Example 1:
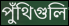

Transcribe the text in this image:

পুঁথিগুলি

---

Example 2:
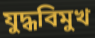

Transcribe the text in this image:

যুদ্ধবিমুখ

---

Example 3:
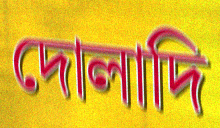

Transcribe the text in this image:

দোলাদি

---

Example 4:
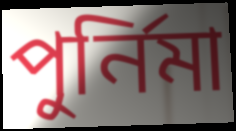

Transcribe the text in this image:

পুর্নিমা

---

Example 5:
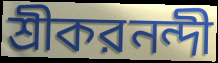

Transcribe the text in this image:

শ্রীকরনন্দী